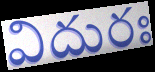
విదురః